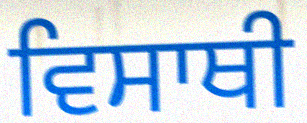
ਵਿਸਾਥੀ